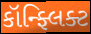
કૉન્ફ્લિક્ટ